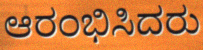
ಆರಂಭಿಸಿದರು